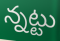
న్నట్టు